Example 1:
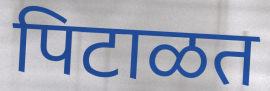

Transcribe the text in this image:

पिटाळत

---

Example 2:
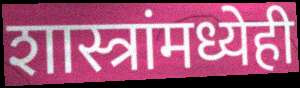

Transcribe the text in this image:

शास्त्रांमध्येही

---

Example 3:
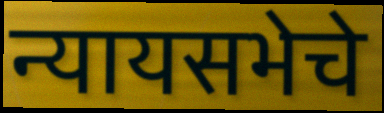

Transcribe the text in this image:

न्यायसभेचे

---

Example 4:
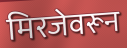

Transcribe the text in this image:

मिरजेवरून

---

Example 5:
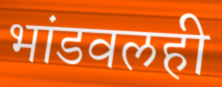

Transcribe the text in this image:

भांडवलही